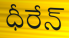
ధీరేన్